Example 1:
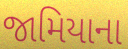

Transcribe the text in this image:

જામિયાના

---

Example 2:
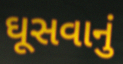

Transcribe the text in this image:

ઘૂસવાનું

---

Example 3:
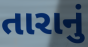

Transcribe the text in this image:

તારાનું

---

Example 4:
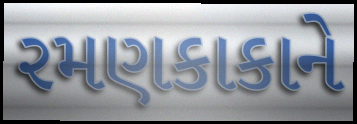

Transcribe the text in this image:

રમણકાકાને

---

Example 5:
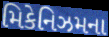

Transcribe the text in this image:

મિકેનિઝમના